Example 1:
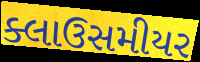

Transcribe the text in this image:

ક્લાઉસમીયર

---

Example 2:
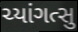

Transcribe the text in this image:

ચ્યાંગત્સુ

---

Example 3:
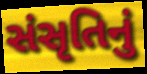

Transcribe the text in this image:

સંસૃતિનું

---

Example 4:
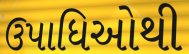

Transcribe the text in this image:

ઉપાધિઓથી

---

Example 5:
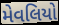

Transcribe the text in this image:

મેવલિયો